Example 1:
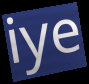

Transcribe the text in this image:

iye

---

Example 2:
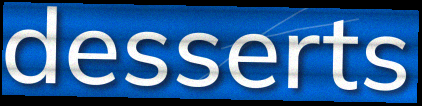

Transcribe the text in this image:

desserts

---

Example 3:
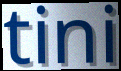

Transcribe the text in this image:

tini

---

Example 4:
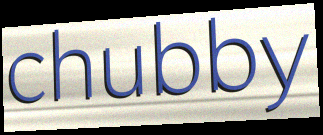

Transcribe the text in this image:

chubby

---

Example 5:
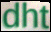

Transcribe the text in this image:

dht